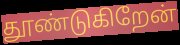
தூண்டுகிறேன்